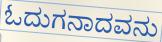
ಓದುಗನಾದವನು